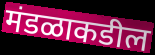
मंडळाकडील